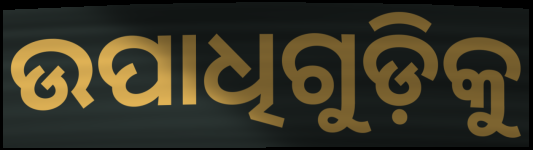
ଉପାଧିଗୁଡ଼ିକୁ